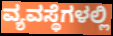
ವ್ಯವಸ್ಥೆಗಳಲ್ಲಿ